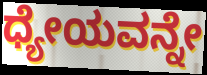
ಧ್ಯೇಯವನ್ನೇ